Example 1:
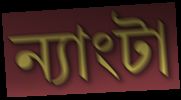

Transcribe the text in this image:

ন্যাংটা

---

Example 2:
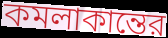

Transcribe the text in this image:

কমলাকান্তের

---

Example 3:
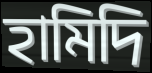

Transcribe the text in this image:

হামিদি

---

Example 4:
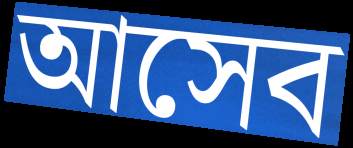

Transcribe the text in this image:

আসেব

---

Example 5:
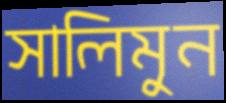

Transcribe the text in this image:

সালিমুন